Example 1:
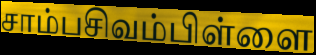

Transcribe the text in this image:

சாம்பசிவம்பிள்ளை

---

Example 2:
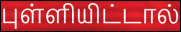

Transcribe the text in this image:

புள்ளியிட்டால்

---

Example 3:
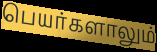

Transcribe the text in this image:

பெயர்களாலும்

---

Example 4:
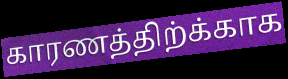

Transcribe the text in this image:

காரணத்திற்க்காக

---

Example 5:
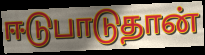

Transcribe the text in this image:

ஈடுபாடுதான்